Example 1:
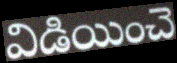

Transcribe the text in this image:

విడియించె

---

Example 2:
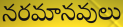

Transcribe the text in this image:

నరమానవులు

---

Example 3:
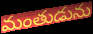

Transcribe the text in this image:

మంతుడును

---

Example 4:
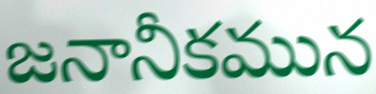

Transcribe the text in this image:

జనానీకమున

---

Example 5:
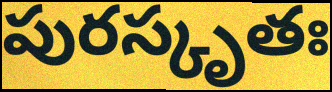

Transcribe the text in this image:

పురస్కృతః